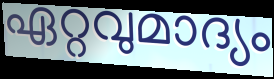
ഏറ്റവുമാദ്യം